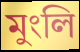
মুংলি